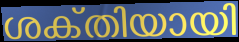
ശക്‌തിയായി